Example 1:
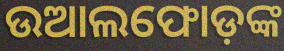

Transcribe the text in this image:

ଉଆଲଫୋଡ଼ଙ୍କ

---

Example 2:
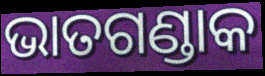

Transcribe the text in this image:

ଭାତଗଣ୍ଡାକ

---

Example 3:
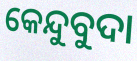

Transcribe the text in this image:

କେନ୍ଦୁବୁଦା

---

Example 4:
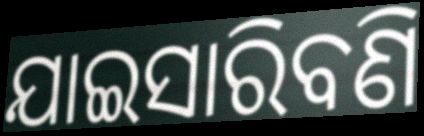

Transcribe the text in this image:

ଯାଇସାରିବଣି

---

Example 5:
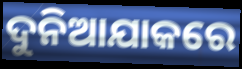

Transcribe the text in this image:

ଦୁନିଆଯାକରେ